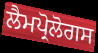
ਲੈਮਪ੍ਰੋਲੋਗਸ